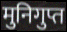
मुनिगुप्त